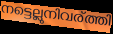
നട്ടെല്ലുനിവര്ത്തി